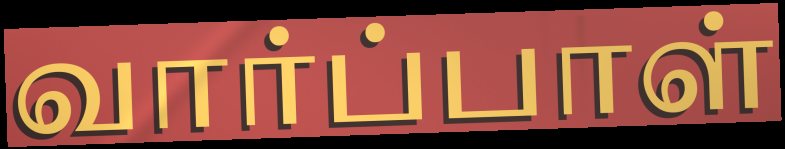
வார்ப்பாள்